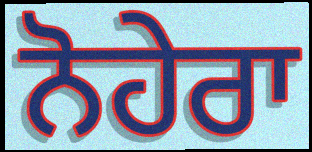
ਨੋਹੇਰਾ